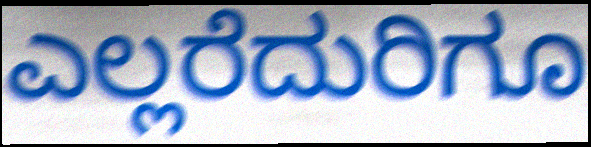
ಎಲ್ಲರೆದುರಿಗೂ